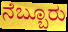
ನೆಬ್ಬೂರು